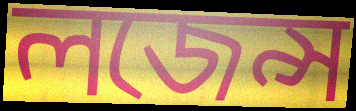
লজেন্স